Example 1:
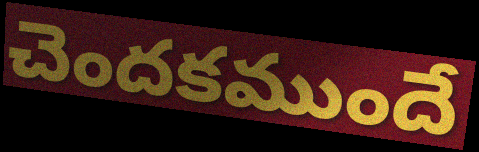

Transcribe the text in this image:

చెందకముందే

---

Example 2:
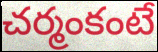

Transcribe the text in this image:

చర్మంకంటే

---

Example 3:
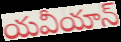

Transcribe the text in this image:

యవీయాన్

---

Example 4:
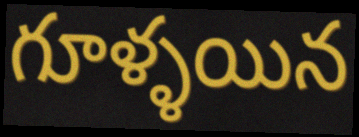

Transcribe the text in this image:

గూళ్ళయిన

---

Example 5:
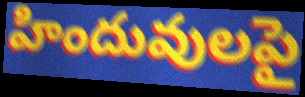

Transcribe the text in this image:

హిందువులపై